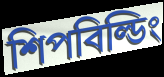
শিপবিল্ডিং